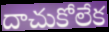
దాచుకోలేక